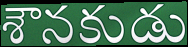
శౌనకుడు